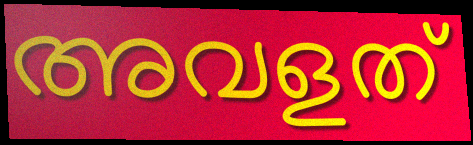
അവളത്